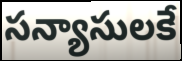
సన్యాసులకే